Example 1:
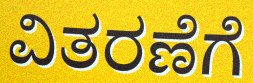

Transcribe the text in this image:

ವಿತರಣೆಗೆ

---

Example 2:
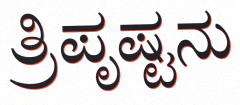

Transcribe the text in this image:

ತ್ರಿಪೃಷ್ಟನು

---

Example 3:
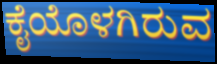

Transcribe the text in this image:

ಕೈಯೊಳಗಿರುವ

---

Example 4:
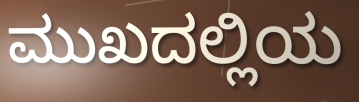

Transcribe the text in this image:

ಮುಖದಲ್ಲಿಯ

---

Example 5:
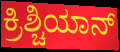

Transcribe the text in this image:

ಕ್ರಿಶ್ಚಿಯಾನ್